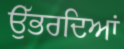
ਉੱਭਰਦਿਆਂ